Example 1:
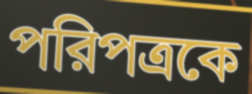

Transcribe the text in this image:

পরিপত্রকে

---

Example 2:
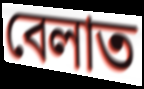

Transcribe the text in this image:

বেলাত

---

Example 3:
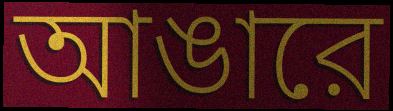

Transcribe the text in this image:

আঙারে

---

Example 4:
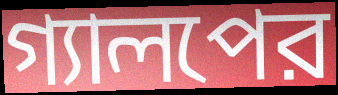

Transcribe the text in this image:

গ্যালপের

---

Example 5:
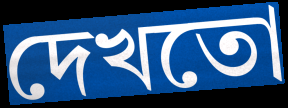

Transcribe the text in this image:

দেখতো